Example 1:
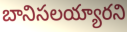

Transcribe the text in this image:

బానిసలయ్యారని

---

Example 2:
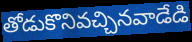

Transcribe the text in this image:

తోడుకొనివచ్చినవాడేడి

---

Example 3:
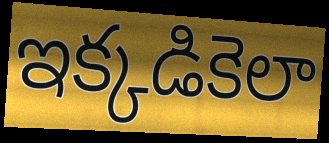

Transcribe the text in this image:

ఇక్కడికెలా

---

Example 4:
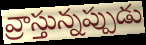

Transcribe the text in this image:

వ్రాస్తున్నప్పుడు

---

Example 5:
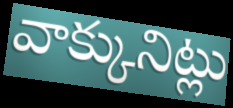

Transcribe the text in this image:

వాక్కునిట్లు